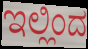
ಇಲ್ಲಿಂದ